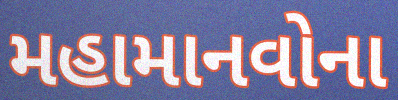
મહામાનવોના